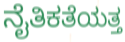
ನೈತಿಕತೆಯತ್ತ